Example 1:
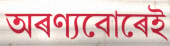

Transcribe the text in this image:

অৰণ্যবোৰেই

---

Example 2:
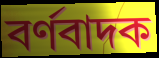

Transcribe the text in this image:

বৰ্ণবাদক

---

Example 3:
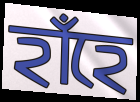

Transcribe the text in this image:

হাঁহে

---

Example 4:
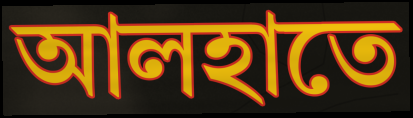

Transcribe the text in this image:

আলহাতে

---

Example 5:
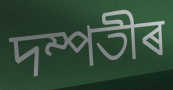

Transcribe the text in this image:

দম্পতীৰ